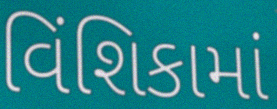
વિંશિકામાં